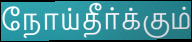
நோய்தீர்க்கும்